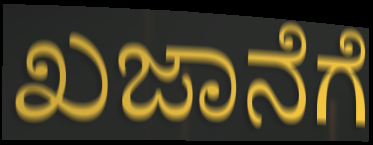
ಖಜಾನೆಗೆ